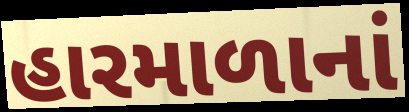
હારમાળાનાં